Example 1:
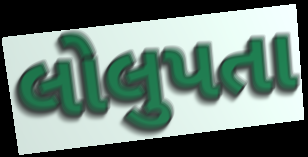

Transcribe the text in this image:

લોલુપતા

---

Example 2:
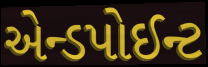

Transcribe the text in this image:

એન્ડપોઈન્ટ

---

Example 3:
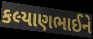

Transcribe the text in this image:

કલ્યાણભાઈને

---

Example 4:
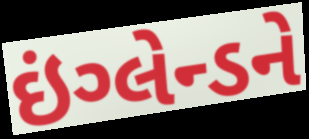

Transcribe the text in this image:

ઇંગ્લેન્ડને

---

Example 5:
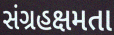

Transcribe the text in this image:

સંગ્રહક્ષમતા